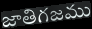
జాతిగజము